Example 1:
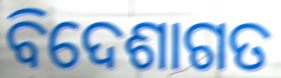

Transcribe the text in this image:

ବିଦେଶାଗତ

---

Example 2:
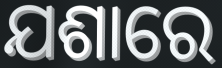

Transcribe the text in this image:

ଯଶାରେ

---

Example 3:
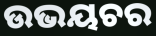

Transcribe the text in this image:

ଉଭୟଚର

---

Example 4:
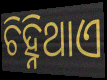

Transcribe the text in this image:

ଚିହ୍ନିଥାଏ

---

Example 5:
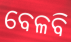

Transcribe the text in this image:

ବେଳବି